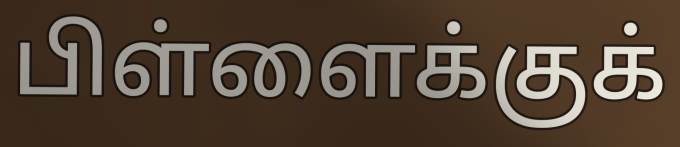
பிள்ளைக்குக்